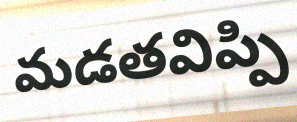
మడతవిప్పి